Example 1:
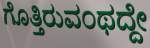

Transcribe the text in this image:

ಗೊತ್ತಿರುವಂಥದ್ದೇ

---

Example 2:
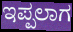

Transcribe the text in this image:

ಇಪ್ಪಲಾಗ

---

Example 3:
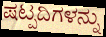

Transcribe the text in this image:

ಷಟ್ಪದಿಗಳನ್ನು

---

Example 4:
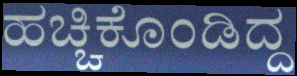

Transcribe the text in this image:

ಹಚ್ಚಿಕೊಂಡಿದ್ದ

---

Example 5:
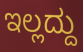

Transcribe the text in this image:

ಇಲ್ಲದ್ದು